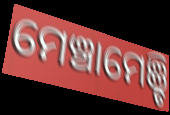
ମେଞ୍ଚାମେଞ୍ଚି